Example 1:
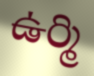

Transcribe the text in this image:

ఉర్మి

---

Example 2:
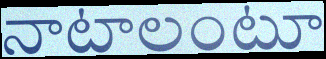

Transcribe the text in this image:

నాటాలంటూ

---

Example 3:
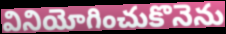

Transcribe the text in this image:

వినియోగించుకొనెను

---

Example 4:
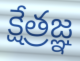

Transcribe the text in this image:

క్షేత్రజ్ఞ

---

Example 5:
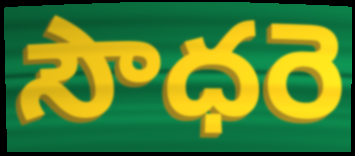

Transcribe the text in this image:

సౌధరె